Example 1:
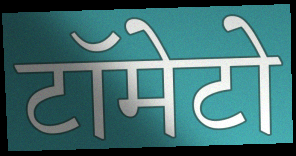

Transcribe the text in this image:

टॉमेटो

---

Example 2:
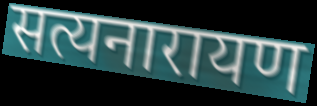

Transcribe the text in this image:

सत्यनारायण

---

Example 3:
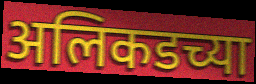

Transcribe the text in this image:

अलिकडच्या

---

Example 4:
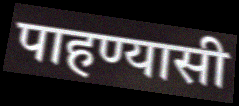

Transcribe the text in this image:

पाहण्यासी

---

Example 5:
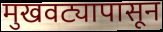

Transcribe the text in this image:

मुखवट्यापासून